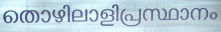
തൊഴിലാളിപ്രസ്ഥാനം